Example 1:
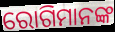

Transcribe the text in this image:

ରୋଗିମାନଙ୍କ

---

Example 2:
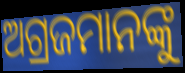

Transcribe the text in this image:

ଅଗ୍ରଜମାନଙ୍କୁ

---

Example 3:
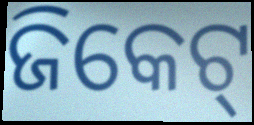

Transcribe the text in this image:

ଜିକେଟ୍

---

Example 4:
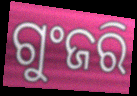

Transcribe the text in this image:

ଗୁଂଜରି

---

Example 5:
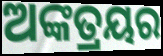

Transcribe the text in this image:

ଅଙ୍କତ୍ରୟର